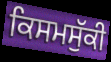
ਕਿਸਮਸੁੱਕੀ